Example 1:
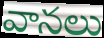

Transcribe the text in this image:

వానలు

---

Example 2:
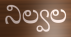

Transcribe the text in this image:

నిల్వల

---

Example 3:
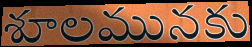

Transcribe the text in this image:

శూలమునకు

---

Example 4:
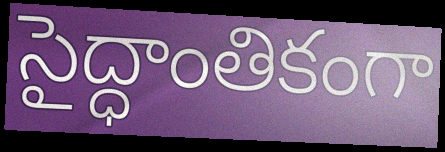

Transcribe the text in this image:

సైద్ధాంతికంగా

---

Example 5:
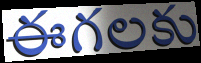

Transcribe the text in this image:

ఈగలకు